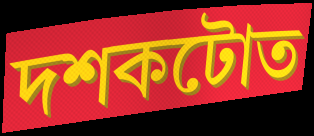
দশকটোত